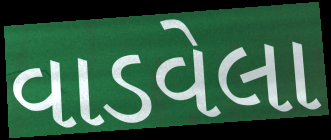
વાડવેલા